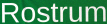
Rostrum